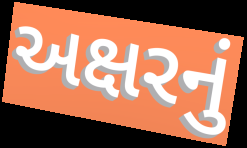
અક્ષરનું